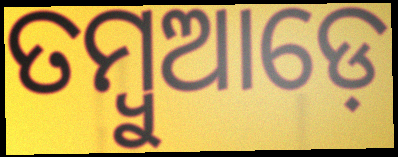
ତମ୍ବୁଆଡ଼େ